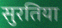
सुरतिया